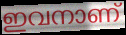
ഇവനാണ്